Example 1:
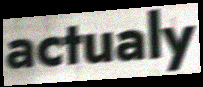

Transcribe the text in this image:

actualy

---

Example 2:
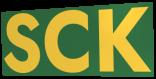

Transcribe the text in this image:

SCK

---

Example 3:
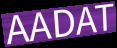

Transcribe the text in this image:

AADAT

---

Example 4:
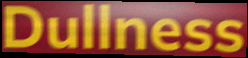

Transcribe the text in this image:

Dullness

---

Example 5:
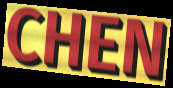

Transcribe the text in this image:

CHEN